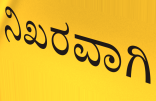
ನಿಖರವಾಗಿ